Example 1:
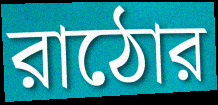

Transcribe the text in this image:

রাঠোর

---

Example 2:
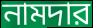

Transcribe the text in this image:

নামদার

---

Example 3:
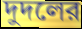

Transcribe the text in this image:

দুদলের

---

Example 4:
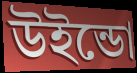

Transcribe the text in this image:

উইন্ডো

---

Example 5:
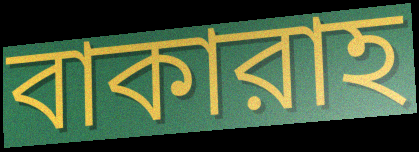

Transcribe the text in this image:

বাকারাহ